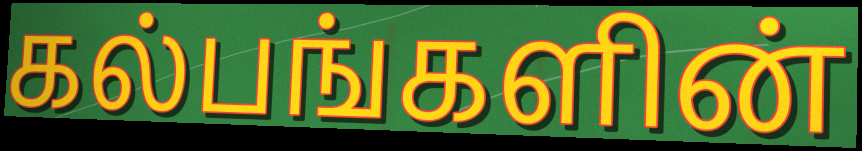
கல்பங்களின்